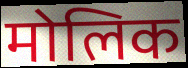
मोलिक